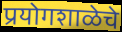
प्रयोगशाळेचे